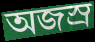
অজস্ৰ